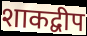
शाकद्वीप